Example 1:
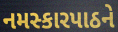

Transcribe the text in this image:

નમસ્કારપાઠને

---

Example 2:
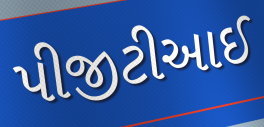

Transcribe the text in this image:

પીજીટીઆઈ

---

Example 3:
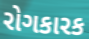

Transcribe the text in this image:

રોગકારક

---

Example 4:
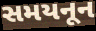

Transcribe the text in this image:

સમયનૂન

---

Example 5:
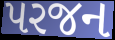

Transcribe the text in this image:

પરજન